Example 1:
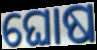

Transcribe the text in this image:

ଘୋଷ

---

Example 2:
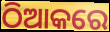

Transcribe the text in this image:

ଠିଆକରେ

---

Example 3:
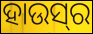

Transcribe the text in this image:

ହାଉସ୍‌ର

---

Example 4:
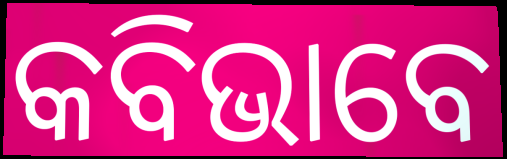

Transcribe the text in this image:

କବିଭାବେ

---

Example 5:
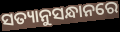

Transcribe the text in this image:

ସତ୍ୟାନୁସନ୍ଧାନରେ